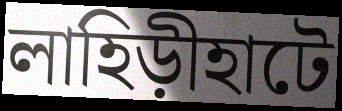
লাহিড়ীহাটে